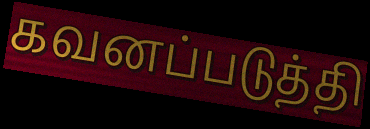
கவனப்படுத்தி